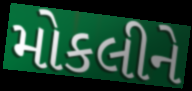
મોકલીને